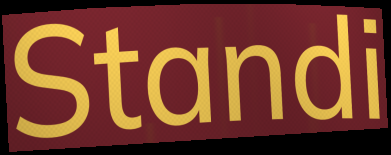
Standi